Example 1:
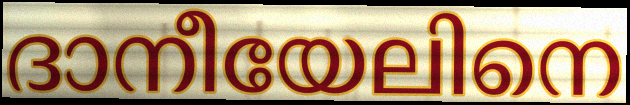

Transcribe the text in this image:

ദാനീയേലിനെ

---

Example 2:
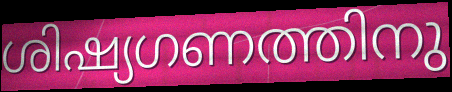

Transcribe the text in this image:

ശിഷ്യഗണത്തിനു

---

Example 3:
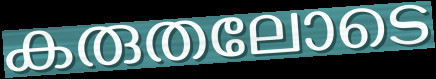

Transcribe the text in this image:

കരുതലോടെ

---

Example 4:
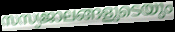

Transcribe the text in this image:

സസ്യജാലങ്ങളുടെയും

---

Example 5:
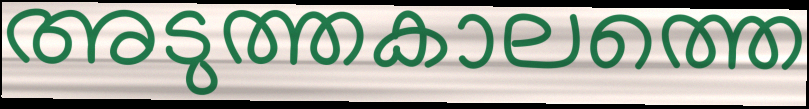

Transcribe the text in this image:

അടുത്തകാലത്തെ